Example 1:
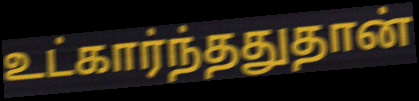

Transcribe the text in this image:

உட்கார்ந்ததுதான்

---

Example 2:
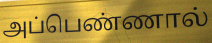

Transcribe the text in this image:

அப்பெண்ணால்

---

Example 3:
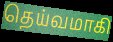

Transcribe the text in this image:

தெய்வமாகி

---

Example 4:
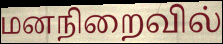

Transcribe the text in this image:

மனநிறைவில்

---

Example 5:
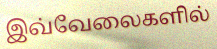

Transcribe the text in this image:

இவ்வேலைகளில்